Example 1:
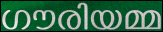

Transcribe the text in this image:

ഗൗരിയമ്മ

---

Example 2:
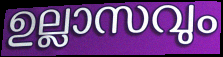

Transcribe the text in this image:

ഉല്ലാസവും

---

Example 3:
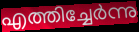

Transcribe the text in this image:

എത്തിച്ചേർന്നു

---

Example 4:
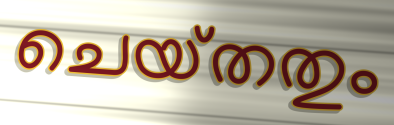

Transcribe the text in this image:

ചെയ്‌തതും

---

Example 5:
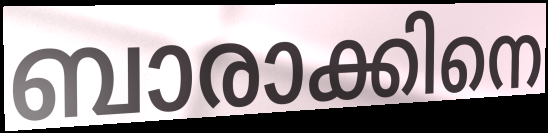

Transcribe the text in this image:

ബാരാക്കിനെ